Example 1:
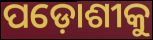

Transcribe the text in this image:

ପଡ଼ୋଶୀକୁ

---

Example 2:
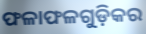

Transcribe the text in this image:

ଫଳାଫଳଗୁଡ଼ିକର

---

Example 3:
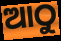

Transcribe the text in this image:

ଆଠୁ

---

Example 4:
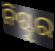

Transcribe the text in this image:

ନିଷ୍ଟୁର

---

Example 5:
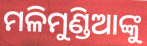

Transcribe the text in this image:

ମଳିମୁଣ୍ଡିଆଙ୍କୁ